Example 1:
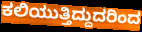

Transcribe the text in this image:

ಕಲಿಯುತ್ತಿದ್ದುದರಿಂದ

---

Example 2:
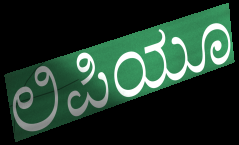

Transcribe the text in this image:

ಲಿಪಿಯೂ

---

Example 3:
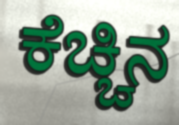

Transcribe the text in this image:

ಕೆಚ್ಚಿನ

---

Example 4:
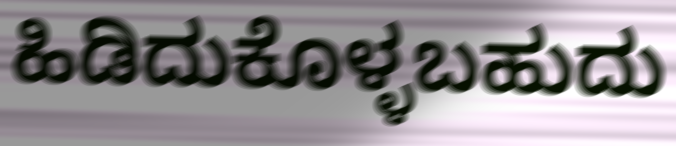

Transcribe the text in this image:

ಹಿಡಿದುಕೊಳ್ಳಬಹುದು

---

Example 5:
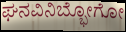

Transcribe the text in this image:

ಘನವಿನಿಬ್ಭೋಗೋ